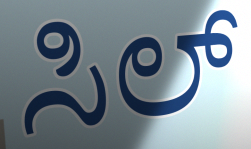
ಸಿಲ್